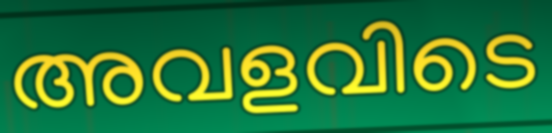
അവളവിടെ